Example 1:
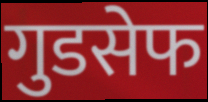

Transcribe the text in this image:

गुडसेफ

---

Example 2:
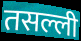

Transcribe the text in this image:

तसल्‍ली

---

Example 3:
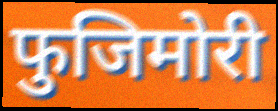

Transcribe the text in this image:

फुजिमोरी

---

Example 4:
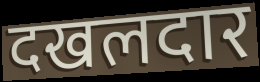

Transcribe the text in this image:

दखलदार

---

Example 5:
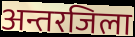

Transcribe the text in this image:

अन्तरजिला